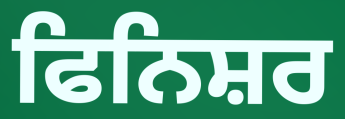
ਫਿਨਿਸ਼ਰ